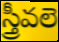
స్త్రీవలె